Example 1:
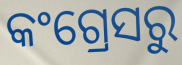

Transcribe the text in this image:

କଂଗ୍ରେସରୁ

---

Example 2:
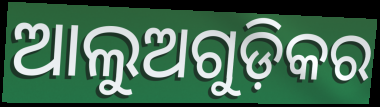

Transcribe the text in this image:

ଆଲୁଅଗୁଡ଼ିକର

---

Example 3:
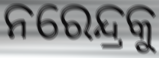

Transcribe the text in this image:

ନରେନ୍ଦ୍ରକୁ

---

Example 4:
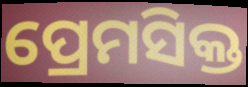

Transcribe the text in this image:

ପ୍ରେମସିକ୍ତ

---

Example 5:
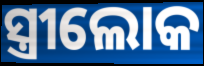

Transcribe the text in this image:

ସ୍ତ୍ରୀଲୋକ